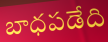
బాధపడేది